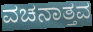
ವಚನಾತ್ತವ